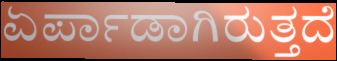
ಏರ್ಪಾಡಾಗಿರುತ್ತದೆ